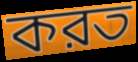
করত